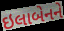
ઇલાબેનને